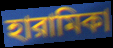
হারামিকা